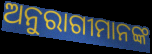
ଅନୁରାଗୀମାନଙ୍କ